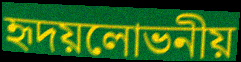
হৃদয়লোভনীয়